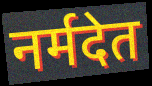
नर्मदेत